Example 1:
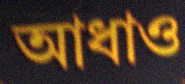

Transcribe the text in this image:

আধাও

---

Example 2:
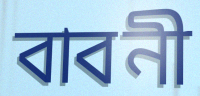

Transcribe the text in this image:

বাবনী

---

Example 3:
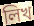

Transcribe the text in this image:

লিখ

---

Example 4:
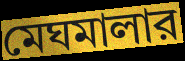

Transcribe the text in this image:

মেঘমালার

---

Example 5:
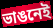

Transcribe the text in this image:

ভাঙনেই